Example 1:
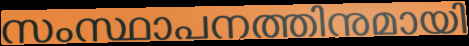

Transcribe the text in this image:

സംസ്ഥാപനത്തിനുമായി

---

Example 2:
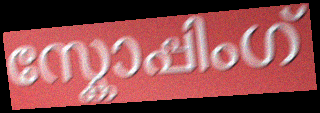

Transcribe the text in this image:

സ്കോപ്പിംഗ്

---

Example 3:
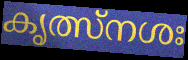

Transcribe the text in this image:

കൃത്സ്നശഃ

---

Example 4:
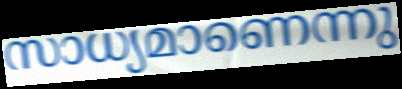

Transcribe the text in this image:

സാധ്യമാണെന്നു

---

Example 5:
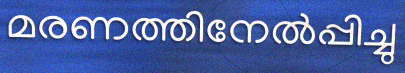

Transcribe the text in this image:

മരണത്തിനേൽപ്പിച്ചു